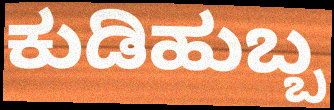
ಕುಡಿಹುಬ್ಬ